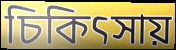
চিকিৎসায়